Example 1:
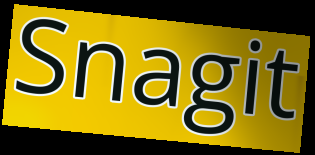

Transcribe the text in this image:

Snagit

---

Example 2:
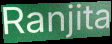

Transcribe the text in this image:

Ranjita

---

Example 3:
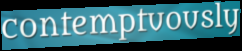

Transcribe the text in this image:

contemptuously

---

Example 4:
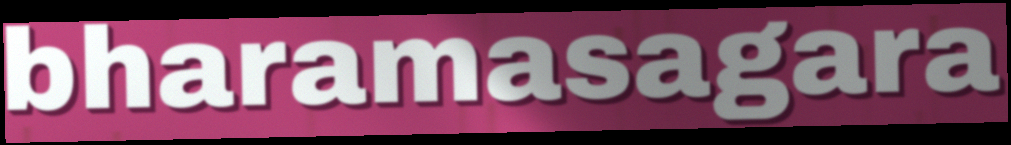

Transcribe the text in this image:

bharamasagara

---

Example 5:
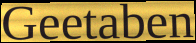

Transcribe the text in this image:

Geetaben